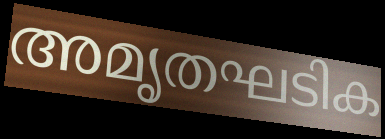
അമൃതഘടിക